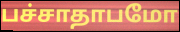
பச்சாதாபமோ